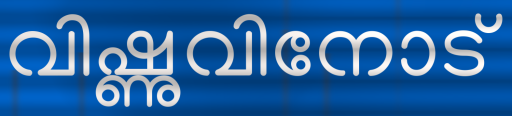
വിഷ്ണുവിനോട്